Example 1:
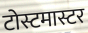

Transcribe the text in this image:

टोस्टमास्टर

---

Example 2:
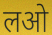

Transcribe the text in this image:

लओ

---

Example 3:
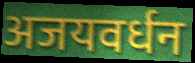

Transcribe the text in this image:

अजयवर्धन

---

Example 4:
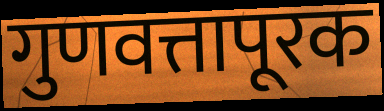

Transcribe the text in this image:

गुणवत्तापूरक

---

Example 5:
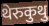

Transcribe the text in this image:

थेरुकुथु